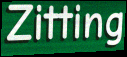
Zitting